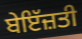
ਬੇਇੱਜ਼ਤੀ